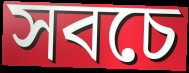
সবচে